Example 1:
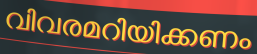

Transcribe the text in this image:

വിവരമറിയിക്കണം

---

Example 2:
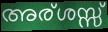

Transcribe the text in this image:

അര്ശസ്സ്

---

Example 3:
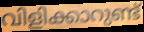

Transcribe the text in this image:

വിളിക്കാറുണ്ട്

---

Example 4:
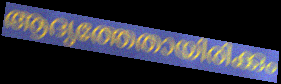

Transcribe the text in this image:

ആദ്യത്തേതായിരിക്കും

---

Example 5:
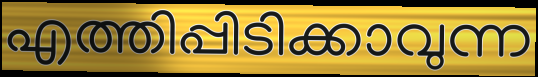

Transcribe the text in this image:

എത്തിപ്പിടിക്കാവുന്ന